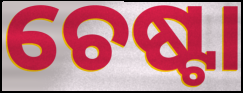
ଚେଷ୍ଟା